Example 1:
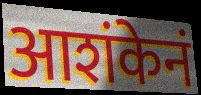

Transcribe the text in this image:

आशंकेनं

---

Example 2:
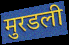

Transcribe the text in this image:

मुरडली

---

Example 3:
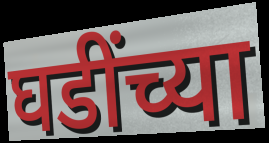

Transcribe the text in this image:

घडींच्या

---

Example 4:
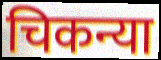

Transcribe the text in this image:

चिकन्या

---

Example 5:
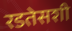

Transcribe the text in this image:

रडतेसशी